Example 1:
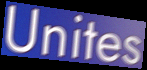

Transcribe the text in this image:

Unites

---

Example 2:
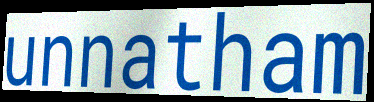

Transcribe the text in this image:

unnatham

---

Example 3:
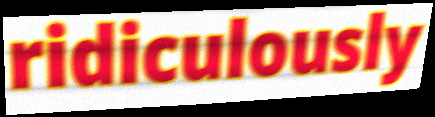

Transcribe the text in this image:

ridiculously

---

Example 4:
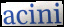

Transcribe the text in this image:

acini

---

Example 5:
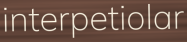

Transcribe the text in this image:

interpetiolar